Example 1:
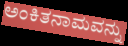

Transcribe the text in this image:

ಅಂಕಿತನಾಮವನ್ನು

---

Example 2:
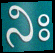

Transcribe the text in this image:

ನಿಃ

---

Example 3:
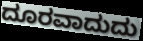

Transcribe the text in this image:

ದೂರವಾದುದು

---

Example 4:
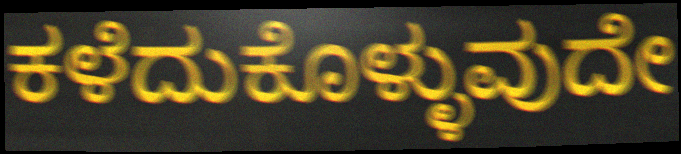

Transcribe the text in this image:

ಕಳೆದುಕೊಳ್ಳುವುದೇ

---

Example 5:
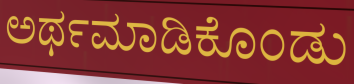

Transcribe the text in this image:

ಅರ್ಥಮಾಡಿಕೊಂಡು